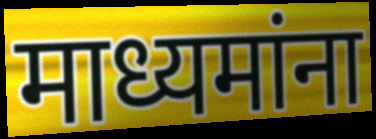
माध्यमांना